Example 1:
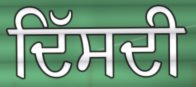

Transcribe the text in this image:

ਦਿੱਸਦੀ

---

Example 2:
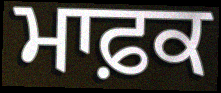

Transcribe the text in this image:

ਮਾਫ਼ਕ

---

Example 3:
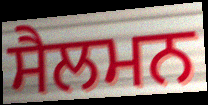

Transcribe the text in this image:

ਸੈਲਮਨ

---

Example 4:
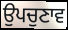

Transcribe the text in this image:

ਉਪਚੁਣਾਵ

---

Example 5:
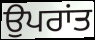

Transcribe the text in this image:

ਉਪਰਾਂਤ